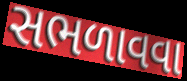
સભળાવવા